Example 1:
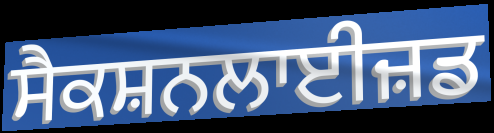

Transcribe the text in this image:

ਸੈਕਸ਼ਨਲਾਈਜ਼ਡ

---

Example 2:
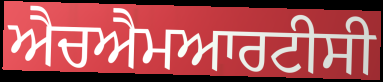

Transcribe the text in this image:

ਐਚਐਮਆਰਟੀਸੀ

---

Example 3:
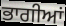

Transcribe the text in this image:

ਭਾਗੀਆਂ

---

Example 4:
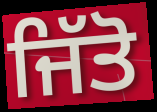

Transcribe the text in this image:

ਜਿੱਤੋ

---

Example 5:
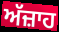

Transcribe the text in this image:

ਅੱਜ਼ਾਹ